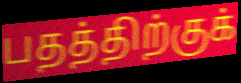
பதத்திற்குக்